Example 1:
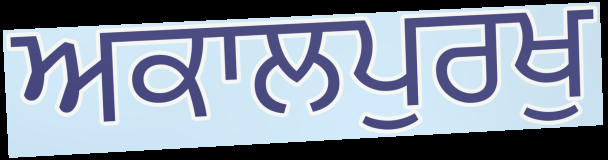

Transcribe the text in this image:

ਅਕਾਲਪੁਰਖੁ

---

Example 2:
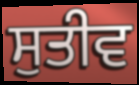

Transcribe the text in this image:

ਸੁਤੀਵ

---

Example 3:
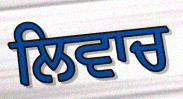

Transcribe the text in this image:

ਲਿਵਾਚ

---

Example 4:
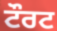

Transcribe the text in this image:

ਟੌਰਟ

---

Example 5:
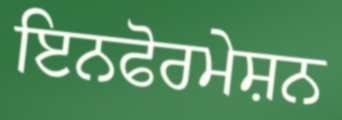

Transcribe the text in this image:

ਇਨਫੋਰਮੇਸ਼ਨ